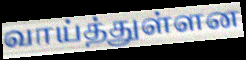
வாய்த்துள்ளன